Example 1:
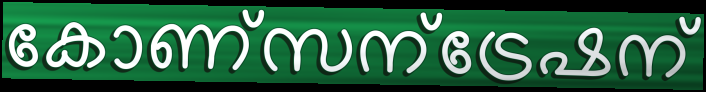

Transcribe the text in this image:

കോണ്സന്ട്രേഷന്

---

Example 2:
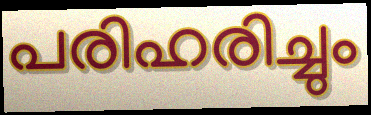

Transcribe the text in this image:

പരിഹരിച്ചും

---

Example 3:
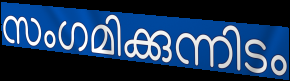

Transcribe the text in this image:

സംഗമിക്കുന്നിടം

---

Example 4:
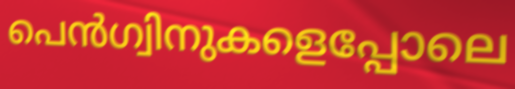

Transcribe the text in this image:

പെൻഗ്വിനുകളെപ്പോലെ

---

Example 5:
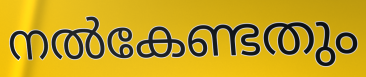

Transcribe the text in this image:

നൽകേണ്ടതും